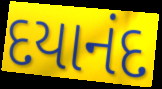
દયાનંદ